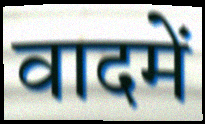
वादमें